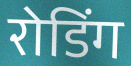
रोडिंग